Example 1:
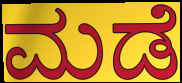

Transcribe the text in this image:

ಮಡೆ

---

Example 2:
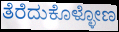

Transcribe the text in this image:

ತೆರೆದುಕೊಳ್ಳೋಣ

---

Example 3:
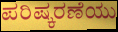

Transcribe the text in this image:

ಪರಿಷ್ಕರಣೆಯು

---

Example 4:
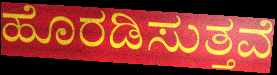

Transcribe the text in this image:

ಹೊರಡಿಸುತ್ತವೆ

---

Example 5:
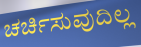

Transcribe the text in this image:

ಚರ್ಚಿಸುವುದಿಲ್ಲ